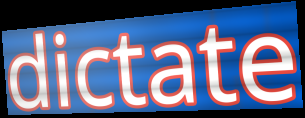
dictate